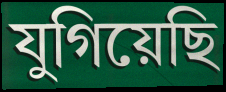
যুগিয়েছি